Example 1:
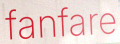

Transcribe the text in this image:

fanfare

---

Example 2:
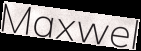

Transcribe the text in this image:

Maxwel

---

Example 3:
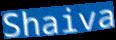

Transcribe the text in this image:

Shaiva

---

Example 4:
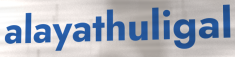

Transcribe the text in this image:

alayathuligal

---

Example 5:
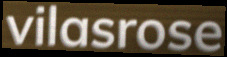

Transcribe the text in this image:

vilasrose